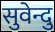
सुवेन्दु